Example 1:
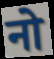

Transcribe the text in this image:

नो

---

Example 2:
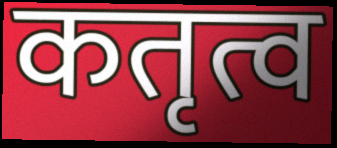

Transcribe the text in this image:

कतृत्व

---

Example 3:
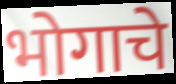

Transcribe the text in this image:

भोगाचे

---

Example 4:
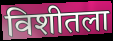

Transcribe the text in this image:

विशीतला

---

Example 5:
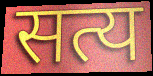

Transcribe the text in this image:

सत्य